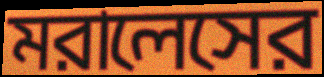
মরালেসের